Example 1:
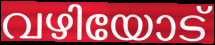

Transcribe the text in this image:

വഴിയോട്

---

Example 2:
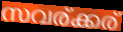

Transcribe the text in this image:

സവര്ക്കര്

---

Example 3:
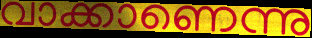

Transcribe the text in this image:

വാക്കാണെന്നു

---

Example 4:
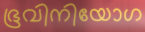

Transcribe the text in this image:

ഭൂവിനിയോഗ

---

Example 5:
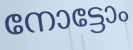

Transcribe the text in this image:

നോട്ടോം